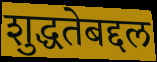
शुद्धतेबद्दल